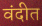
वंदीत